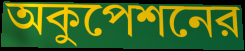
অকুপেশনের